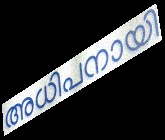
അധിപനായി